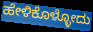
ಹೇಳಿಕೊಳ್ಳೋದು